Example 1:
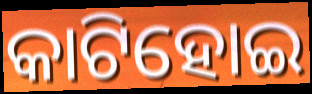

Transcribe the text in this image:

କାଟିହୋଇ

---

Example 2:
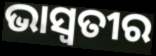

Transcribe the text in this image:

ଭାସ୍ୱତୀର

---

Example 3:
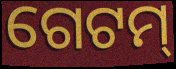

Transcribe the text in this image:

ଗେଟମ୍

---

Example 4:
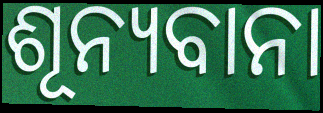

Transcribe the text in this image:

ଶୂନ୍ୟବାନା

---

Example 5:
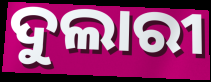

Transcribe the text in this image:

ଦୁଲାରୀ